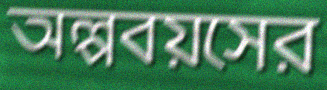
অল্পবয়সের